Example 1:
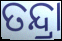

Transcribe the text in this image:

ତନ୍ଦ୍ରା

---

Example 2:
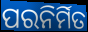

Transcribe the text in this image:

ପରନିର୍ମିତ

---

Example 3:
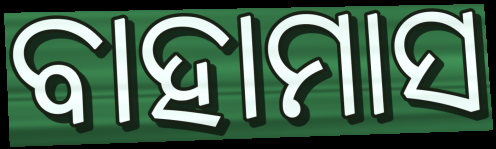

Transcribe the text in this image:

ବାହାମାସ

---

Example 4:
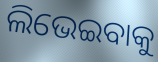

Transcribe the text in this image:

ଲିଭେଇବାକୁ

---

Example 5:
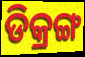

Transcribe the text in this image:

ଡିକ୍ରଙ୍ଗ